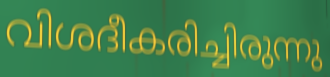
വിശദീകരിച്ചിരുന്നു